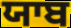
ਯਾਬ